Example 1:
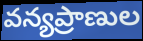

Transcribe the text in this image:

వన్యప్రాణుల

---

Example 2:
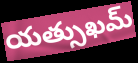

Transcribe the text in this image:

యత్సుఖమ్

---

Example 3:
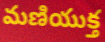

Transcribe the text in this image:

మణియుక్త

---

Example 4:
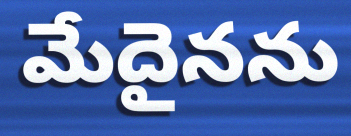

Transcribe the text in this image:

మేదైనను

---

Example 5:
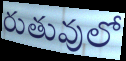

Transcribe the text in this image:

రుతువులో